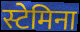
स्टेमिना